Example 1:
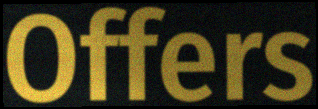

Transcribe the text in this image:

Offers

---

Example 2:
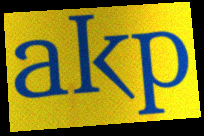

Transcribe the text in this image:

akp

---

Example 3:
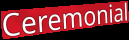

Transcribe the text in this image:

Ceremonial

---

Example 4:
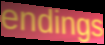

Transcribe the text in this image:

endings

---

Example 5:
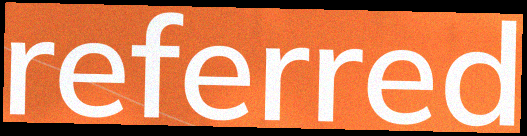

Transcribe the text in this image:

referred